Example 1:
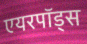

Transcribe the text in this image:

एयरपॉड्स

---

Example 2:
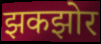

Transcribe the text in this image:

झकझोर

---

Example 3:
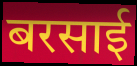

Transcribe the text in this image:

बरसाई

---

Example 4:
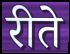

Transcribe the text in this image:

रीते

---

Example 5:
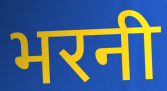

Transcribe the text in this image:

भरनी